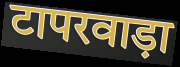
टापरवाड़ा